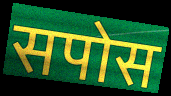
सपोस